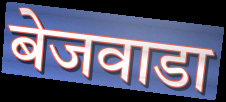
बेजवाडा